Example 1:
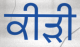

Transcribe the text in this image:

ਕੀੜੀ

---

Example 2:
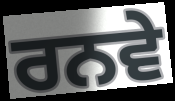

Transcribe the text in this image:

ਰਨਵੇ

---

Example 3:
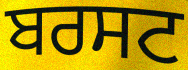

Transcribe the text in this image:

ਬਰਸਟ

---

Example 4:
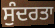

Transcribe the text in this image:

ਸੁੰਦਰਤਾ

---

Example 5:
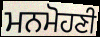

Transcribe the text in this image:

ਮਨਮੋਹਣੀ